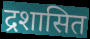
द्रशासित